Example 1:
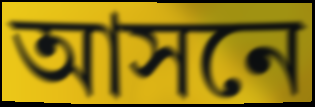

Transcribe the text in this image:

আসনে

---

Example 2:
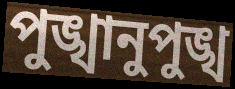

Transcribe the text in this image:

পুঙ্খানুপুঙ্খ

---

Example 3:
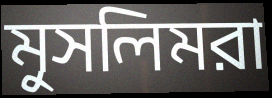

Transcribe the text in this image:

মুসলিমরা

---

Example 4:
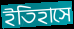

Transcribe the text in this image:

ইতিহাসে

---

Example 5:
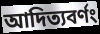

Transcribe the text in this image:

আদিত্যবর্ণং